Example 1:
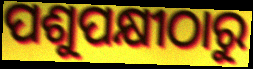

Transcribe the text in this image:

ପଶୁପକ୍ଷୀଠାରୁ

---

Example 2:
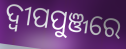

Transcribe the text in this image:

ଦ୍ୱୀପପୁଞ୍ଜରେ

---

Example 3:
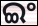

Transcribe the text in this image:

ଇଂ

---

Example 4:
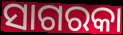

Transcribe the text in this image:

ସାଗରକା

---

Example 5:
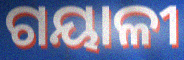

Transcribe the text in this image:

ଗୟାଳୀ